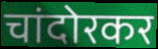
चांदोरकर